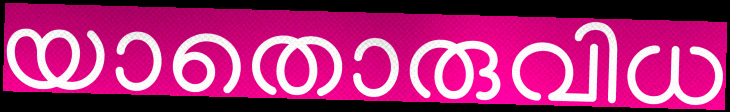
യാതൊരുവിധ